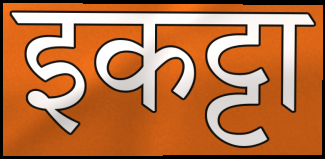
इकट्टा